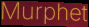
Murphet